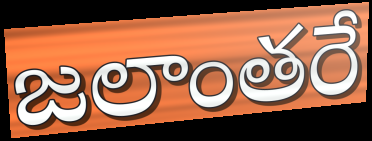
జలాంతరే